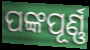
ପଙ୍କପୂର୍ଣ୍ଣ